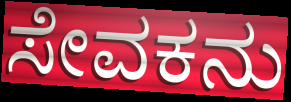
ಸೇವಕನು